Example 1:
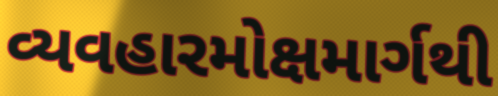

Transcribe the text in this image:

વ્યવહારમોક્ષમાર્ગથી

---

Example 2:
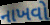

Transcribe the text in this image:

નાખવો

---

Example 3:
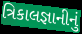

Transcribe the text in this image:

ત્રિકાલજ્ઞાનીનું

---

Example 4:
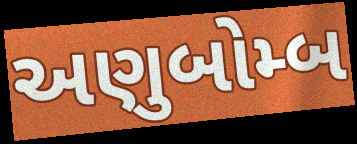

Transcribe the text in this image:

અણુબોમ્બ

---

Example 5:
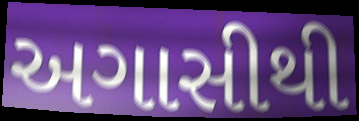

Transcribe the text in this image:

અગાસીથી